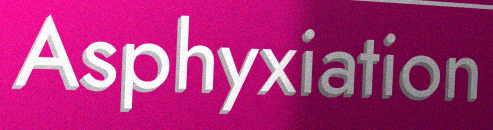
Asphyxiation